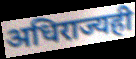
अधिराज्यही